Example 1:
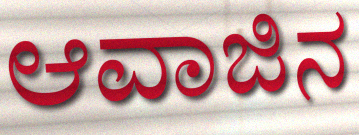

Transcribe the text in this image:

ಆವಾಜಿನ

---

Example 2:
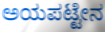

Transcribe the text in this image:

ಅಯಪಟ್ಟೇನ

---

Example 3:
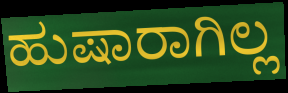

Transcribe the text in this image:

ಹುಷಾರಾಗಿಲ್ಲ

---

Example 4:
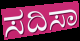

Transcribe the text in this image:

ಸದಿಸಾ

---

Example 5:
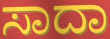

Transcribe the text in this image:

ಸಾದಾ